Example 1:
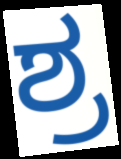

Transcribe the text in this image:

ಶ್ರ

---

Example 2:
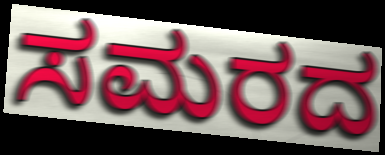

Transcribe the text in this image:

ಸಮರದ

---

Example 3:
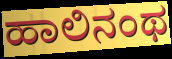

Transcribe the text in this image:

ಹಾಲಿನಂಥ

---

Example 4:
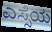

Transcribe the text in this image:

ಎಸ್ಸೆಯ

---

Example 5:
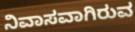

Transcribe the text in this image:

ನಿವಾಸವಾಗಿರುವ